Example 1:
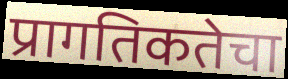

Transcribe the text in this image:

प्रागतिकतेचा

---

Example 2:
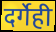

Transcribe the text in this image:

दर्गेही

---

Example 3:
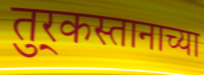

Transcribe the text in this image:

तुर्कस्तानाच्या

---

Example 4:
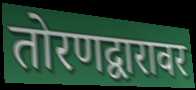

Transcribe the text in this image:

तोरणद्वारावर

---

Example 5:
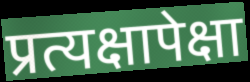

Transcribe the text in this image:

प्रत्यक्षापेक्षा